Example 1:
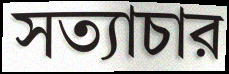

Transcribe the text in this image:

সত্যাচার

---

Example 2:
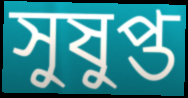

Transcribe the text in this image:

সুষুপ্ত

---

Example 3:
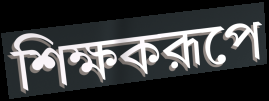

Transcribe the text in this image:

শিক্ষকরূপে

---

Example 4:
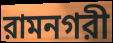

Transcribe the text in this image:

রামনগরী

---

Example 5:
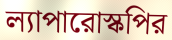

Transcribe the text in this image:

ল্যাপারোস্কপির